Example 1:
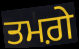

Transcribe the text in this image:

ਤਮਗ਼ੇ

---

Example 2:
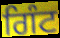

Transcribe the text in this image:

ਗਿੰਟ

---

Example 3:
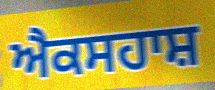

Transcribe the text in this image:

ਐਕਸਹਾਸ਼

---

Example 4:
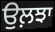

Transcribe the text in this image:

ਉਲ਼ਝਾ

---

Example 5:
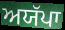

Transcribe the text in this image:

ਅਯੱਪਾ